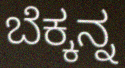
ಬೆಕ್ಕನ್ನ